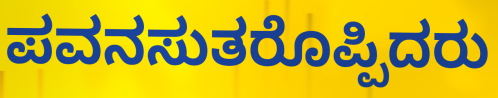
ಪವನಸುತರೊಪ್ಪಿದರು